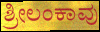
ಶ್ರೀಲಂಕಾವು